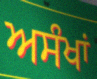
ਅਸੰਖਾਂ